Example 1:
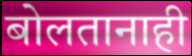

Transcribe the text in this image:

बोलतानाही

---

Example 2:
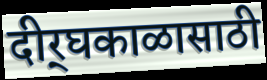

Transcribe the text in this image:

दीर्घकाळासाठी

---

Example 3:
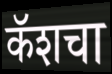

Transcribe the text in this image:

कॅशचा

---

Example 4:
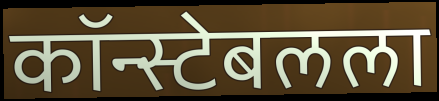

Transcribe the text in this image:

कॉन्स्टेबलला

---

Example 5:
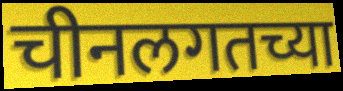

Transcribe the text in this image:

चीनलगतच्या